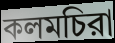
কলমচিরা